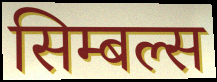
सिम्बल्स